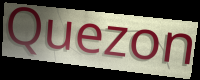
Quezon